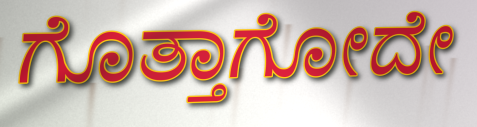
ಗೊತ್ತಾಗೋದೇ